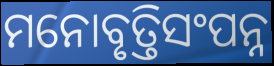
ମନୋବୃତ୍ତିସଂପନ୍ନ